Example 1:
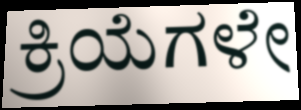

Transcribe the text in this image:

ಕ್ರಿಯೆಗಳೇ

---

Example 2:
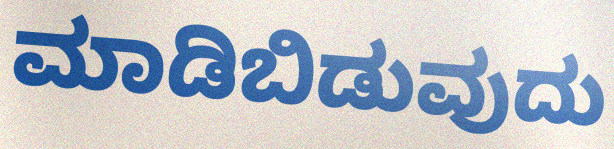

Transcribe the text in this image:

ಮಾಡಿಬಿಡುವುದು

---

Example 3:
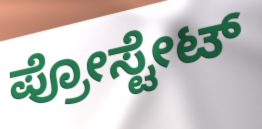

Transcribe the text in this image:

ಪ್ರೋಸ್ಟೇಟ್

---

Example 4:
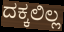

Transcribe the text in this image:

ದಕ್ಕಲಿಲ್ಲ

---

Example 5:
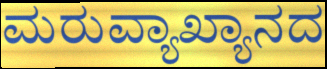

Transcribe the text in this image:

ಮರುವ್ಯಾಖ್ಯಾನದ